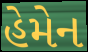
હેમેન